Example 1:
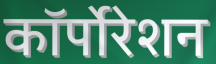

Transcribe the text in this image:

कॉर्पोरेशन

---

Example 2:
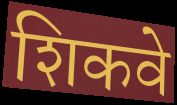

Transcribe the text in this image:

शिकवे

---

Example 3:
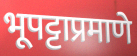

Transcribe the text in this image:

भूपट्टाप्रमाणे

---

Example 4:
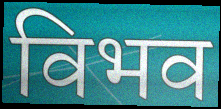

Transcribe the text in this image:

विभव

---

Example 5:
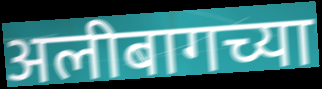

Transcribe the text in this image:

अलीबागच्या